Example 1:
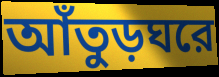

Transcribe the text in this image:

আঁতুড়ঘরে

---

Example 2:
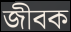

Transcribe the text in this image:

জীবক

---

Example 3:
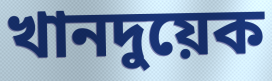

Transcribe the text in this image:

খানদুয়েক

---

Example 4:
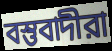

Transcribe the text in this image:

বস্তুবাদীরা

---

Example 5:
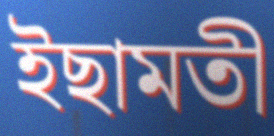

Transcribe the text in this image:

ইছামতী